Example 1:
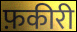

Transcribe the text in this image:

फ़कीरी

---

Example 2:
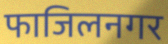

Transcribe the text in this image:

फाजिलनगर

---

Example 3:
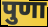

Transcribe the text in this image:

पुणा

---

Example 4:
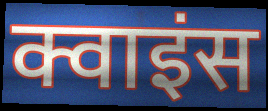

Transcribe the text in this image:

क्वाइंस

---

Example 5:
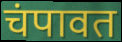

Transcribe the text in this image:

चंपावत